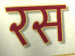
रस